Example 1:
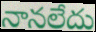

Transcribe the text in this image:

నానలేదు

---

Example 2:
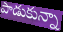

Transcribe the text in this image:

పాడుకున్నా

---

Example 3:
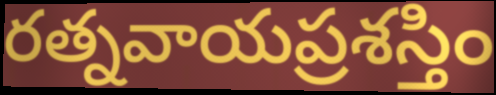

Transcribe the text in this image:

రత్నవాయప్రశస్తిం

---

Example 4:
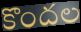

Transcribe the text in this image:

కొందల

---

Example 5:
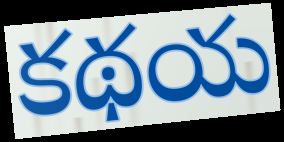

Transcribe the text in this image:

కథయ